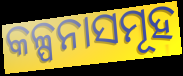
କଳ୍ପନାସମୂହ